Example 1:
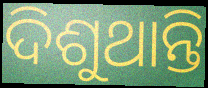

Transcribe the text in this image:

ଦିଶୁଥାନ୍ତି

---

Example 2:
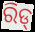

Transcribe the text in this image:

ରିଡ୍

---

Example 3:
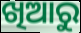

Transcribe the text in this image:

ଖିଆରୁ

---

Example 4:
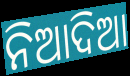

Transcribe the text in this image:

ନିଆଦିଆ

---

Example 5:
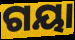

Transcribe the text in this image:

ଗୟା